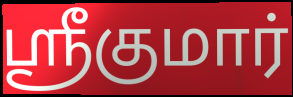
ஸ்ரீகுமார்